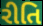
રીતિ